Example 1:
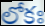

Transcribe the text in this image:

లోకః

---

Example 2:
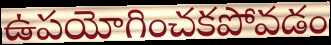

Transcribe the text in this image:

ఉపయోగించకపోవడం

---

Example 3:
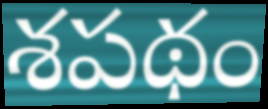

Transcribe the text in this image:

శపథం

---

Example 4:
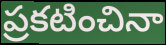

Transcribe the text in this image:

ప్రకటించినా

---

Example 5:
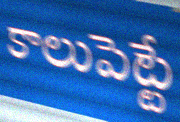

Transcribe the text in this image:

కాలుపెట్టే